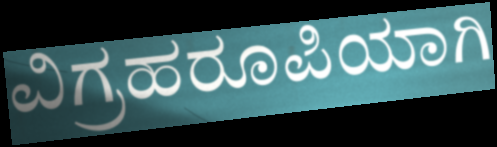
ವಿಗ್ರಹರೂಪಿಯಾಗಿ